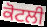
ਕੋਟਲੀ